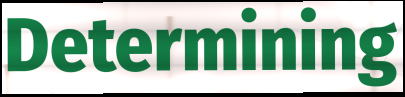
Determining